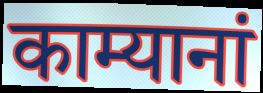
काम्यानां